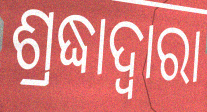
ଶ୍ରଦ୍ଧାଦ୍ୱାରା